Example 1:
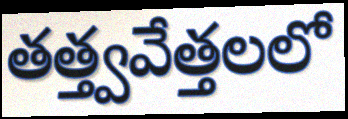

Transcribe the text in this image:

తత్త్వవేత్తలలో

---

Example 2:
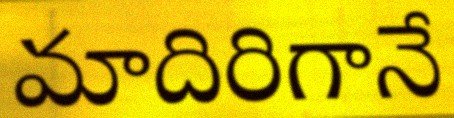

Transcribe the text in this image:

మాదిరిగానే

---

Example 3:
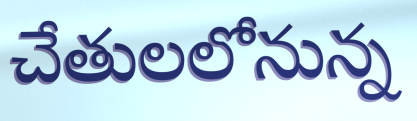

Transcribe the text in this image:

చేతులలోనున్న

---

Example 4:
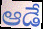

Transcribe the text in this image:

ఆడే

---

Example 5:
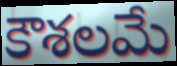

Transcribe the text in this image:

కౌశలమే